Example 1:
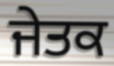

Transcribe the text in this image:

ਜੇਤਕ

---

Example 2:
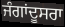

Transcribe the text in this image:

ਜੰਗਾਂਦੂਸਰਾ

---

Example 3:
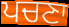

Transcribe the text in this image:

ਪਚਣਾ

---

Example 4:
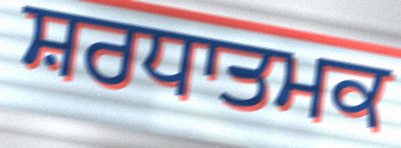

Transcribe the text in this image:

ਸ਼ਰਧਾਤਮਕ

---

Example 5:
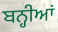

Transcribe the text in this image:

ਬਨ੍ਹੀਆਂ